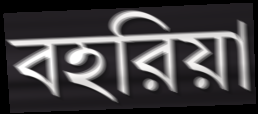
বহরিয়া